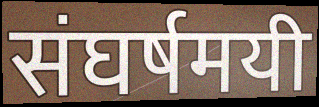
संघर्षमयी